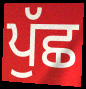
ਪੁੱਛ